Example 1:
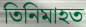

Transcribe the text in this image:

তিনিমাহত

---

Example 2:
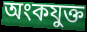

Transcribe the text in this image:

অংকযুক্ত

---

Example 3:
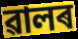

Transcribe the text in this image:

ৱালৰ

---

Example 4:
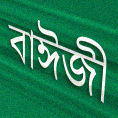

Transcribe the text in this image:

বাঈজী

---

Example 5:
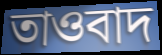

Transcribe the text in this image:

তাওবাদ